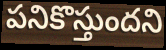
పనికొస్తుందని